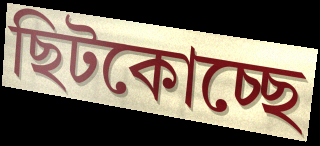
ছিটকোচ্ছে